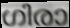
ഗിരാ